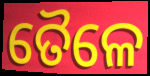
ତୈଳେ